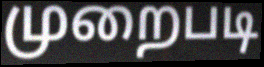
முறைபடி